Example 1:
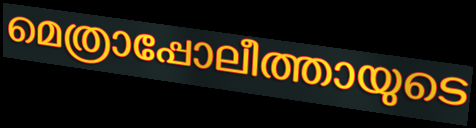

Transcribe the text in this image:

മെത്രാപ്പോലീത്തായുടെ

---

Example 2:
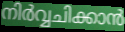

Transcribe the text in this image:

നിർവ്വചിക്കാൻ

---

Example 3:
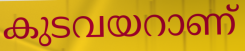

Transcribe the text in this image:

കുടവയറാണ്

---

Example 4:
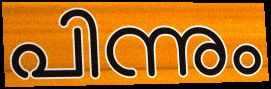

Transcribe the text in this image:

പിന്നും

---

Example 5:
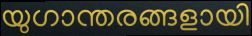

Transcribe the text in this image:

യുഗാന്തരങ്ങളായി